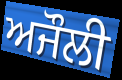
ਅਜੌਲੀ